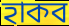
হাকব